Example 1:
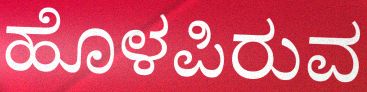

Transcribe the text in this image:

ಹೊಳಪಿರುವ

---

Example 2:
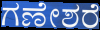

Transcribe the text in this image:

ಗಣೇಶರೆ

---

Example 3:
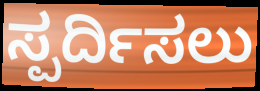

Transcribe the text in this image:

ಸ್ಪರ್ದಿಸಲು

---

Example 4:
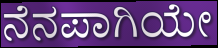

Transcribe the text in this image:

ನೆನಪಾಗಿಯೇ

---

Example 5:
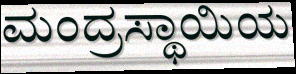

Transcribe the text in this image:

ಮಂದ್ರಸ್ಥಾಯಿಯ